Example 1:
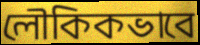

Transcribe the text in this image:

লৌকিকভাবে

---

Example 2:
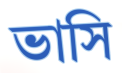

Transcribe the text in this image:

ভাসি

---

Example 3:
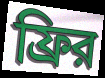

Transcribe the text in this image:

ফ্রির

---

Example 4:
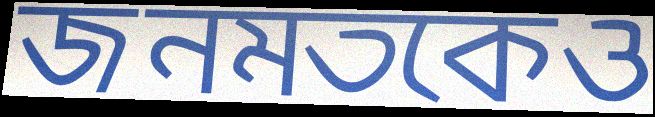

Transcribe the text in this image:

জনমতকেও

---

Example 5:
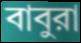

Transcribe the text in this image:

বাবুরা